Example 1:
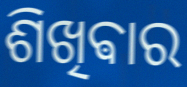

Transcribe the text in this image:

ଶିଖିଵାର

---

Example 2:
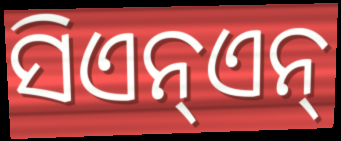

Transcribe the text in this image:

ସିଏନ୍ଏନ୍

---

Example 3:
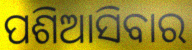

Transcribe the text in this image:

ପଶିଆସିବାର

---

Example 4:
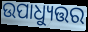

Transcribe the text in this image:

ଉପାଧ୍ୟୁତ୍ତର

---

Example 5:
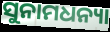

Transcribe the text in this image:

ସୁନାମଧନ୍ୟା